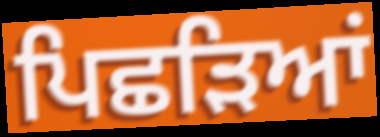
ਪਿਛੜਿਆਂ